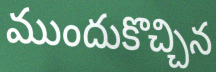
ముందుకొచ్చిన